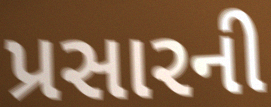
પ્રસારની